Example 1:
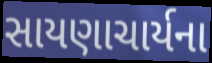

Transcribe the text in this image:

સાયણાચાર્યના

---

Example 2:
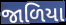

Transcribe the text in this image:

જાળિયા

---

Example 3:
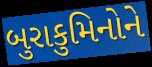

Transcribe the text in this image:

બુરાકુમિનોને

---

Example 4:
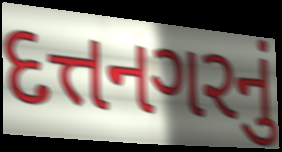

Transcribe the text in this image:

દત્તનગરનું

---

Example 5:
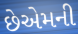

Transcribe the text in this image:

છેએમની